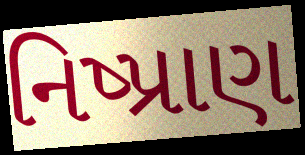
નિષ્પ્રાણ